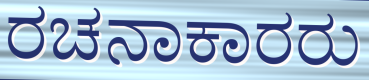
ರಚನಾಕಾರರು